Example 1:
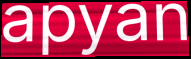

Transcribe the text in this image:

apyan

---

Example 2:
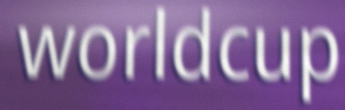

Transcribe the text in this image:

worldcup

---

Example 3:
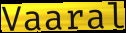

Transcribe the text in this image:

Vaaral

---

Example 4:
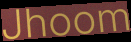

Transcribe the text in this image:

Jhoom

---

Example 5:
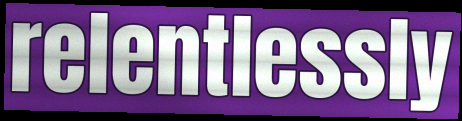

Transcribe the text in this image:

relentlessly